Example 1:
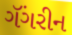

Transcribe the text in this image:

ગૅંગરીન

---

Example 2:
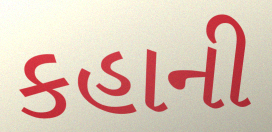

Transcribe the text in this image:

કહાની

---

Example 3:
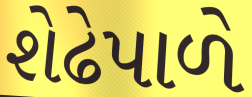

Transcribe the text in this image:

શેઢેપાળે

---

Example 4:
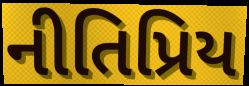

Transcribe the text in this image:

નીતિપ્રિય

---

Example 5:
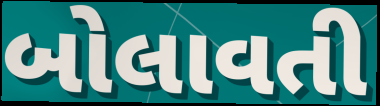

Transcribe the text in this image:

બોલાવતી